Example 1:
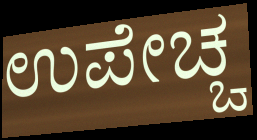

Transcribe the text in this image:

ಉಪೇಚ್ಚ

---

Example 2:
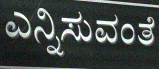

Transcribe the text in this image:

ಎನ್ನಿಸುವಂತೆ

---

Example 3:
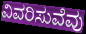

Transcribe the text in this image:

ವಿವರಿಸುವೆವು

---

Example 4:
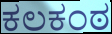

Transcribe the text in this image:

ಕಲಕಂಠ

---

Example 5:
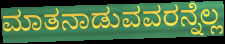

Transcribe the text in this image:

ಮಾತನಾಡುವವರನ್ನೆಲ್ಲ